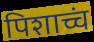
पिशाच्चं